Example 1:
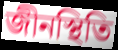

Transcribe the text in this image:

জীনস্থিতি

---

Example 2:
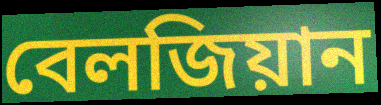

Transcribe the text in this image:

বেলজিয়ান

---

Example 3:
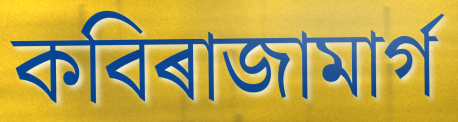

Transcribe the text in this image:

কবিৰাজামাৰ্গ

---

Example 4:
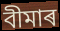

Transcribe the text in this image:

বীমাৰ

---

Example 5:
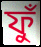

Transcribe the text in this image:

ফুঁ